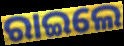
ରାଇଲେ